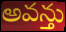
అవన్తు